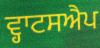
ਵ੍ਹਾਟਸਐਪ